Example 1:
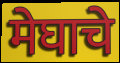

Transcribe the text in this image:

मेघाचे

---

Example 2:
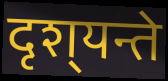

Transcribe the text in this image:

दृश्यन्ते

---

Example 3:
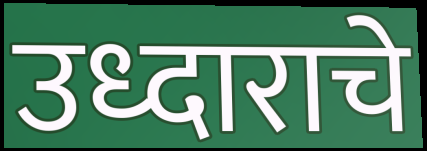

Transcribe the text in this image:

उध्दाराचे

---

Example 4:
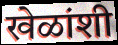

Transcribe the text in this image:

खेळांशी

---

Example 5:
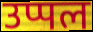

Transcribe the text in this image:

उप्पल